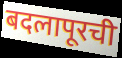
बदलापूरची